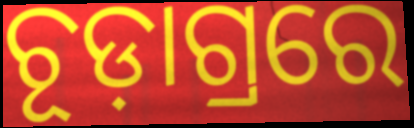
ଚୂଡ଼ାଗ୍ରରେ